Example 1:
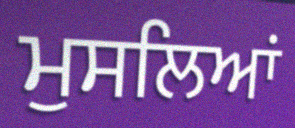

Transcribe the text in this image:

ਮੁਸਲਿਆਂ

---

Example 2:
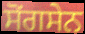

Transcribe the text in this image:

ਸੋਂਗਸੇਨ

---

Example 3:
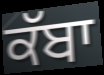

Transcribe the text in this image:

ਕੱਬਾ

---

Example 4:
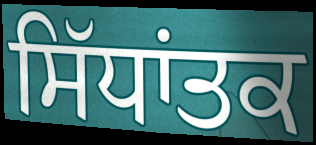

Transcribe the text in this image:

ਸਿੱਧਾਂਤਕ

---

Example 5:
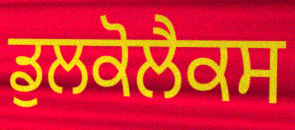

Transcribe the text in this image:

ਡੁਲਕੋਲੈਕਸ